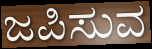
ಜಪಿಸುವ